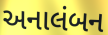
અનાલંબન